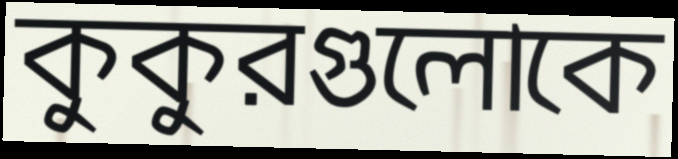
কুকুরগুলোকে